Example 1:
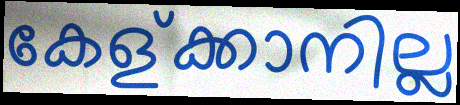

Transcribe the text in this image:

കേള്ക്കാനില്ല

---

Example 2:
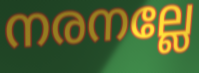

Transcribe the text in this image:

നരനല്ലേ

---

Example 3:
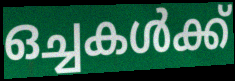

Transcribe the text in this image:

ഒച്ചകൾക്ക്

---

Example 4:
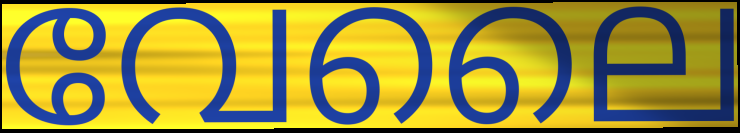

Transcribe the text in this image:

വേലൈ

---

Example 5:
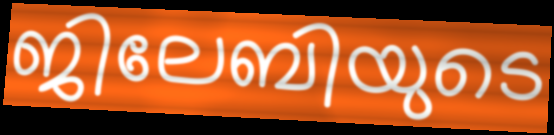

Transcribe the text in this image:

ജിലേബിയുടെ